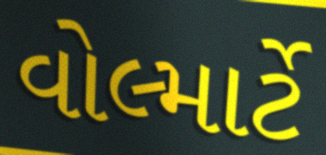
વોલ્માર્ટે